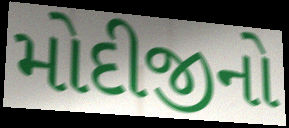
મોદીજીનો